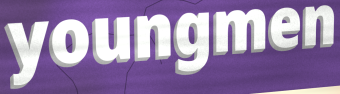
youngmen